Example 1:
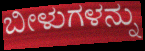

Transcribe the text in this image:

ಬೀಳುಗಳನ್ನು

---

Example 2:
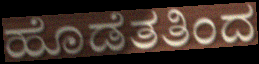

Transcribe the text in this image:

ಹೊಡೆತತಿಂದ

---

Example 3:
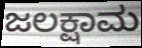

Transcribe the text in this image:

ಜಲಕ್ಷಾಮ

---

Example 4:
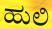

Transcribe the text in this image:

ಹುಲಿ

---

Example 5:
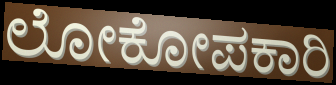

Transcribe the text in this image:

ಲೋಕೋಪಕಾರಿ